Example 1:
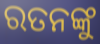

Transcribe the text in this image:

ରତନଙ୍କୁ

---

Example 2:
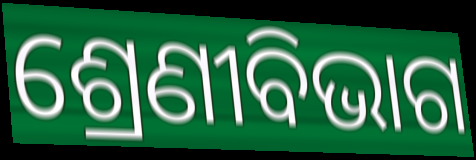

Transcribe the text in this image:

ଶ୍ରେଣୀବିଭାଗ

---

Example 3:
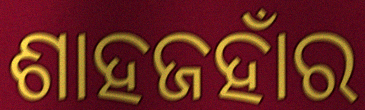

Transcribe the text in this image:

ଶାହଜହାଁର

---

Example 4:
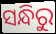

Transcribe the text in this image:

ସନ୍ଧିରୁ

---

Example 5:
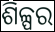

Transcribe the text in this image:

ଶିଳ୍ପର